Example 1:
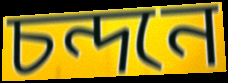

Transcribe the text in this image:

চন্দনে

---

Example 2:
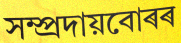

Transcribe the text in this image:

সম্প্ৰদায়বোৰৰ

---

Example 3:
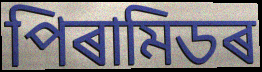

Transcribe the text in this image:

পিৰামিডৰ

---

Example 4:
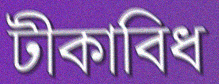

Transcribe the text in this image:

টীকাবিধ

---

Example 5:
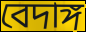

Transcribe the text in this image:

বেদাঙ্গ